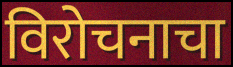
विरोचनाचा